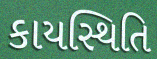
કાયસ્થિતિ